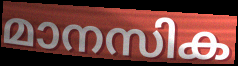
മാനസിക